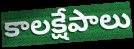
కాలక్షేపాలు